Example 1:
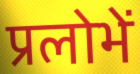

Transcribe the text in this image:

प्रलोभें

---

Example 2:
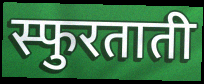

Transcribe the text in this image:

स्फुरताती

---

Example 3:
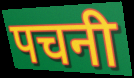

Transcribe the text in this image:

पचनी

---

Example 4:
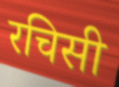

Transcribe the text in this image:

रचिसी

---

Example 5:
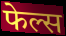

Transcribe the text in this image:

फेल्स